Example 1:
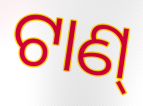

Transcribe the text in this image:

ଟାଣ୍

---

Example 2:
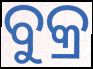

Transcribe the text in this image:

ବୁକ୍ର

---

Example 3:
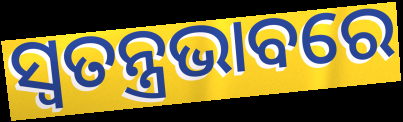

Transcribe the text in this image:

ସ୍ଵତନ୍ତ୍ରଭାବରେ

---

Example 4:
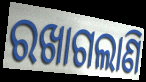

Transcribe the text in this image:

ରଖାଗଲାଣି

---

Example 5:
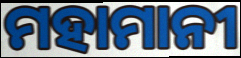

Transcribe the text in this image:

ମହାମାନୀ